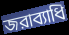
জরাব্যাধি